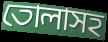
তোলাসহ